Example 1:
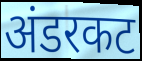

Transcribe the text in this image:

अंडरकट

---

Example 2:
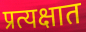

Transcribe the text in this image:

प्रत्यक्षात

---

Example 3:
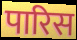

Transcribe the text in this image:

पारिस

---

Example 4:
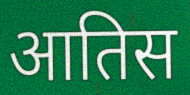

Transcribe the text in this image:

आतिस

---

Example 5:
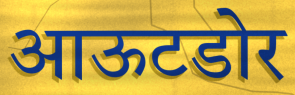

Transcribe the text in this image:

आऊटडोर